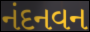
નંદનવન